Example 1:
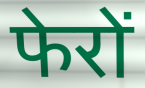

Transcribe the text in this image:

फेरों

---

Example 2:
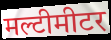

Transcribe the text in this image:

मल्टीमीटर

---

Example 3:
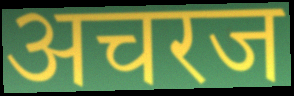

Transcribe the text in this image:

अचरज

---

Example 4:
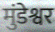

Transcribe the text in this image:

मुंडेश्वर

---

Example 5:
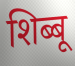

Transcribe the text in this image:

शिब्बू